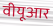
वीयूआर